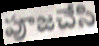
పూజచేసి